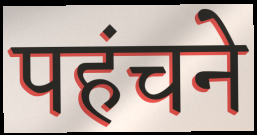
पहंचने